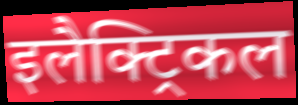
इलैक्ट्रिकल